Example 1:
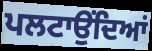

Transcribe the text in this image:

ਪਲਟਾਉਂਦਿਆਂ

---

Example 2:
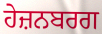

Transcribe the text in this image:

ਹੇਜ਼ਨਬਰਗ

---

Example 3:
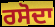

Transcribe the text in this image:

ਰਸੋਦਾ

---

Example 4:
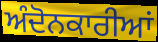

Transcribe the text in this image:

ਅੰਦੋਨਕਾਰੀਆਂ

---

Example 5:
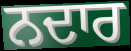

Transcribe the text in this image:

ਨਦਾਰ